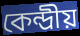
কেন্দ্ৰীয়